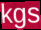
kgs